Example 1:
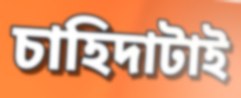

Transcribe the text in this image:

চাহিদাটাই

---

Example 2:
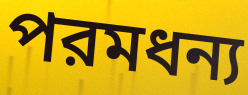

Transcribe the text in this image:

পরমধন্য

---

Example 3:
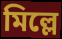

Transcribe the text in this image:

মিল্লে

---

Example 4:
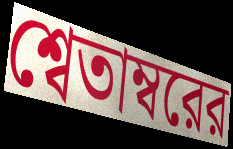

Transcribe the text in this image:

শ্বেতাম্বরের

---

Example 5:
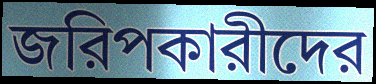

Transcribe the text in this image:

জরিপকারীদের